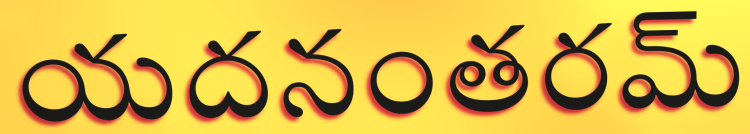
యదనంతరమ్